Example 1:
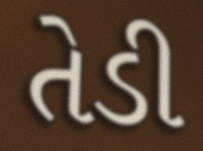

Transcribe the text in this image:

તેડી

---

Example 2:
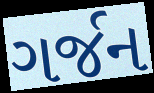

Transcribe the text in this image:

ગર્જન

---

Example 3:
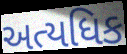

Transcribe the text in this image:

અત્યધિક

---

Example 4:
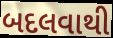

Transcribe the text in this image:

બદલવાથી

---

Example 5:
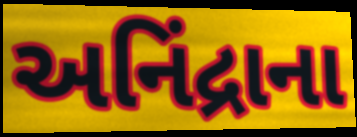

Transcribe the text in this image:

અનિંદ્રાના